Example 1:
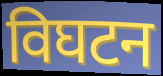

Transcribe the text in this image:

विघटन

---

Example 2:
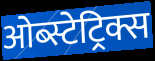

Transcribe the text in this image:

ओब्स्टेट्रिक्स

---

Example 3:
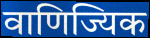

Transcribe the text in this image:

वाणिज्यिक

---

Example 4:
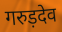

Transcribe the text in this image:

गरुड़देव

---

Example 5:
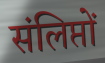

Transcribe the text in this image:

संलिप्तों